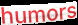
humors